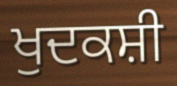
ਖੁਦਕਸ਼ੀ